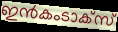
ഇൻകംടാക്സ്